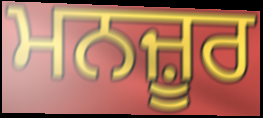
ਮਨਜ਼ੂਰ